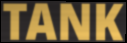
TANK